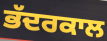
ਭੱਦਰਕਾਲ